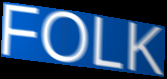
FOLK